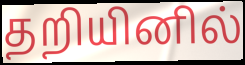
தறியினில்